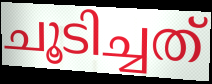
ചൂടിച്ചത്